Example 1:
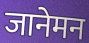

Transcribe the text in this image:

जानेमन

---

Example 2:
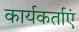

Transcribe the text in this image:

कार्यकर्ताएं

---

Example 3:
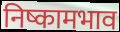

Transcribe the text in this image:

निष्कामभाव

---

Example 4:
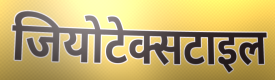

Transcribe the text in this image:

जियोटेक्सटाइल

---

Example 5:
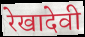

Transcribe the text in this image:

रेखादेवी